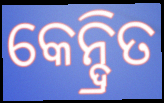
କେନ୍ଦ୍ରିତ